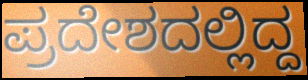
ಪ್ರದೇಶದಲ್ಲಿದ್ದ